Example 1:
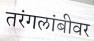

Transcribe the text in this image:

तरंगलांबीवर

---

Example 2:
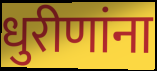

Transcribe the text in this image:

धुरीणांना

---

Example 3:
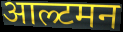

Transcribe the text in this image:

आल्टमन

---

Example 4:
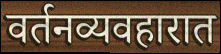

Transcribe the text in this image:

वर्तनव्यवहारात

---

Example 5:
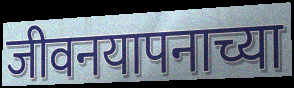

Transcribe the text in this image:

जीवनयापनाच्या